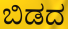
ಬಿಡದ